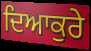
ਦਿਆਕੁਰੇ